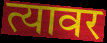
त्यावर